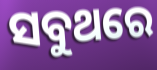
ସବୁଥରେ